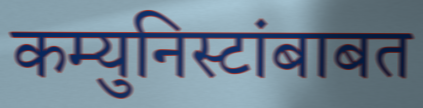
कम्युनिस्टांबाबत